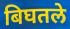
बिघतले